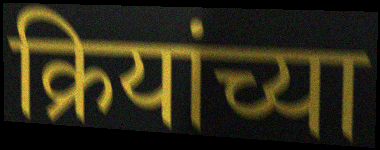
क्रियांच्या